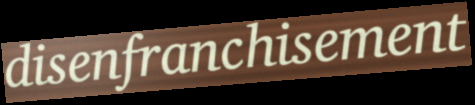
disenfranchisement